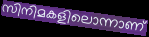
സിനിമകളിലൊന്നാണ്